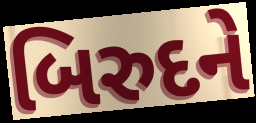
બિરુદને